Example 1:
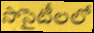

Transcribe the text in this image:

సొసైటీలలో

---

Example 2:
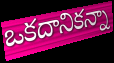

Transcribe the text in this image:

ఒకదానికన్నా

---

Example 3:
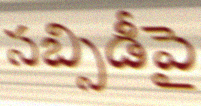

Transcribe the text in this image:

సబ్సిడీపై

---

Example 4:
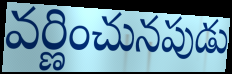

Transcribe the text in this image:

వర్ణించునపుడు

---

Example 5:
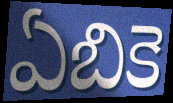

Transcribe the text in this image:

ఏబికె